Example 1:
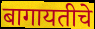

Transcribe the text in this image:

बागायतीचे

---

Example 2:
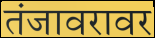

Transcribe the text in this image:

तंजावरावर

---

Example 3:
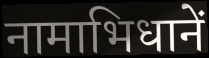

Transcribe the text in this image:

नामाभिधानें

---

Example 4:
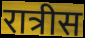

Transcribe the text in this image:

रात्रीस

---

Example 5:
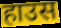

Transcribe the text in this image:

हाउस